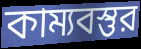
কাম্যবস্তুর